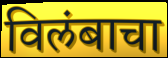
विलंबाचा